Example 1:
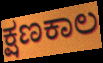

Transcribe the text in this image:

ಕ್ಷಣಕಾಲ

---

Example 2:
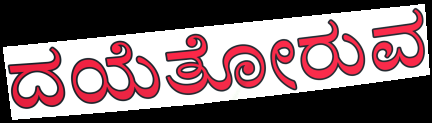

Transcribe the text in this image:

ದಯೆತೋರುವ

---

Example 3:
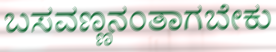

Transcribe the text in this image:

ಬಸವಣ್ಣನಂತಾಗಬೇಕು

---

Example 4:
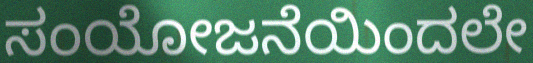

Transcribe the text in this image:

ಸಂಯೋಜನೆಯಿಂದಲೇ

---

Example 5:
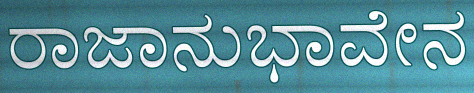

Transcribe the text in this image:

ರಾಜಾನುಭಾವೇನ